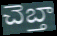
చెబ్తా